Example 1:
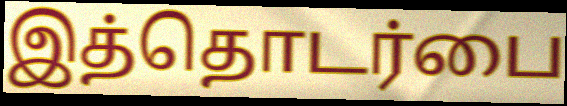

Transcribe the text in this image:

இத்தொடர்பை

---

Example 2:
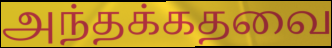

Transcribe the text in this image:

அந்தக்கதவை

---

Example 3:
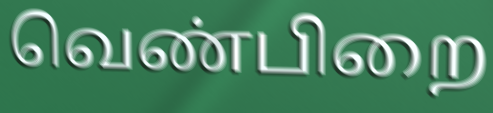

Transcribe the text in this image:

வெண்பிறை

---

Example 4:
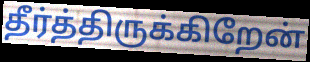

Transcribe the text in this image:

தீர்த்திருக்கிறேன்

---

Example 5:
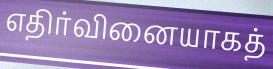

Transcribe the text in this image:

எதிர்வினையாகத்